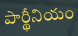
పార్థీనియం